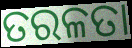
ତରଳତା